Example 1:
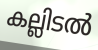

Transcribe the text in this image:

കല്ലിടൽ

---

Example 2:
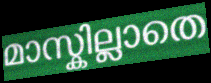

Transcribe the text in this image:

മാസ്കില്ലാതെ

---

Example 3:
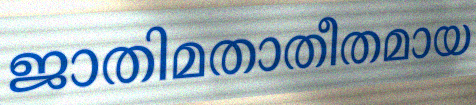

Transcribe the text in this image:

ജാതിമതാതീതമായ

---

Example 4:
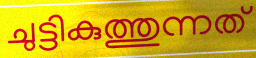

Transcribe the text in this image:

ചുട്ടികുത്തുന്നത്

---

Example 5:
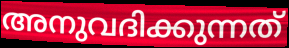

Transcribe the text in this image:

അനുവദിക്കുന്നത്